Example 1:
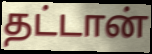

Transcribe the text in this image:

தட்டான்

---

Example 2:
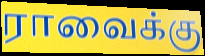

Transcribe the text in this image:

ராவைக்கு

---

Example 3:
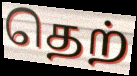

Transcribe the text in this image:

தெற்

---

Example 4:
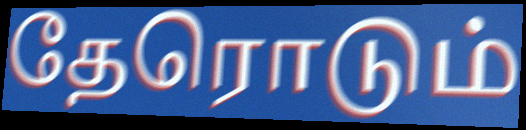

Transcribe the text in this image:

தேரொடும்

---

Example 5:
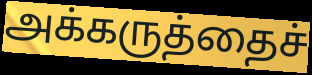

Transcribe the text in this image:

அக்கருத்தைச்